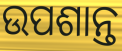
ଉପଶାନ୍ତ